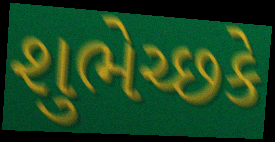
શુભેચ્છકે